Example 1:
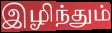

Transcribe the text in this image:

இழிந்தும்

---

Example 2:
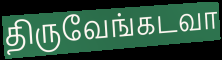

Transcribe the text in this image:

திருவேங்கடவா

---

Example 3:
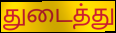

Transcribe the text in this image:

துடைத்து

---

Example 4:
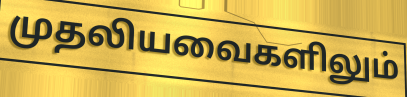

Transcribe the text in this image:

முதலியவைகளிலும்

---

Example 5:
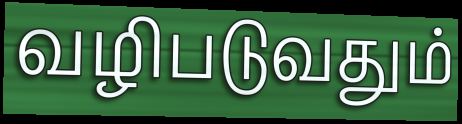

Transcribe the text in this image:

வழிபடுவதும்